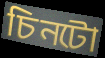
চিনটো